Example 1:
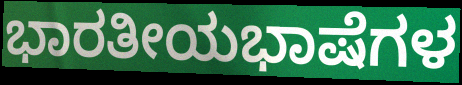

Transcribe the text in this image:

ಭಾರತೀಯಭಾಷೆಗಳ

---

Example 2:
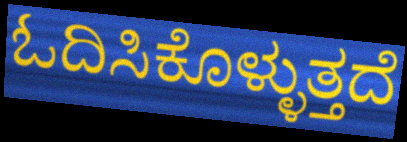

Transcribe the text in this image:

ಓದಿಸಿಕೊಳ್ಳುತ್ತದೆ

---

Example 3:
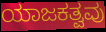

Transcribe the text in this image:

ಯಾಜಕತ್ವವು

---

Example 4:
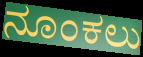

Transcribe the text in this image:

ನೂಂಕಲು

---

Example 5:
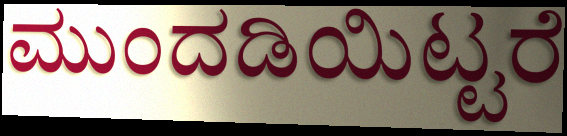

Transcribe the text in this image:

ಮುಂದಡಿಯಿಟ್ಟರೆ